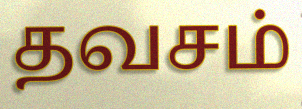
தவசம்